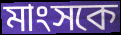
মাংসকে